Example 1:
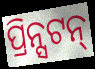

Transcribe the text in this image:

ପ୍ରିନ୍ସଟନ୍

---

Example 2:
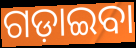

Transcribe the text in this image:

ଗଡ଼ାଇବା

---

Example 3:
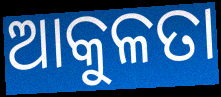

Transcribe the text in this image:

ଆକୁଳତା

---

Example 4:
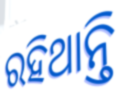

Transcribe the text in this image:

ରହିଥାନ୍ତି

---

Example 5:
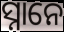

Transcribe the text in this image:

ସ୍ନାନେ